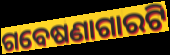
ଗବେଷଣାଗାରଟି